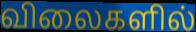
விலைகளில்